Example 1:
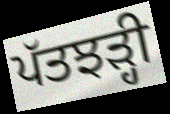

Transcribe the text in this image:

ਪੱਤਝੜ੍ਹੀ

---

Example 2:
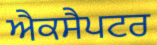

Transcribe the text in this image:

ਐਕਸੈਪਟਰ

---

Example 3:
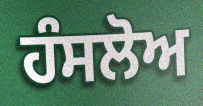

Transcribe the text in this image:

ਹੰਸਲੋਅ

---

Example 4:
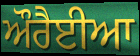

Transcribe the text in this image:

ਔਰੈਈਆ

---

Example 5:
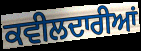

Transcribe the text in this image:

ਕਵੀਲਦਾਰੀਆਂ